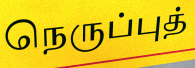
நெருப்புத்